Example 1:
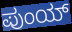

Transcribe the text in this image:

ಪುಂಯ್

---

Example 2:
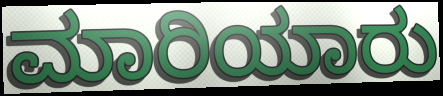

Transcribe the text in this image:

ಮಾರಿಯಾರು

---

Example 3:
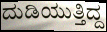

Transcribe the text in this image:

ದುಡಿಯುತ್ತಿದ್ದ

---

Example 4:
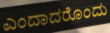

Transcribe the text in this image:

ಎಂದಾದರೊಂದು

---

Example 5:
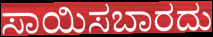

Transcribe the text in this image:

ಸಾಯಿಸಬಾರದು